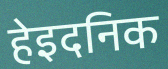
हेइदनिक